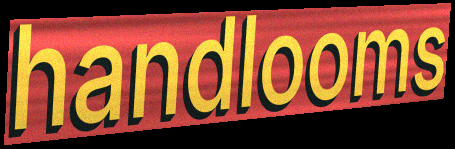
handlooms